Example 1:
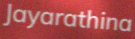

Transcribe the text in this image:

Jayarathina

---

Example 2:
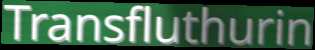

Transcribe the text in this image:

Transfluthurin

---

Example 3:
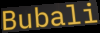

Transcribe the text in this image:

Bubali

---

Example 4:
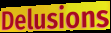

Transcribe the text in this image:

Delusions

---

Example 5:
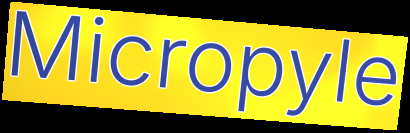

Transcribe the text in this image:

Micropyle